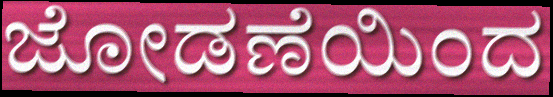
ಜೋಡಣೆಯಿಂದ